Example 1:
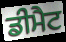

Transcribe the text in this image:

ਡੀਮੈਟ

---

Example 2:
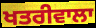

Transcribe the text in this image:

ਖਤਰੀਵਾਲਾ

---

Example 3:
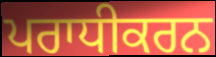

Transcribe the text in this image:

ਪਰਾਧੀਕਰਨ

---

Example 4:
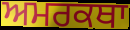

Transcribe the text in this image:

ਅਮਰਕਥਾ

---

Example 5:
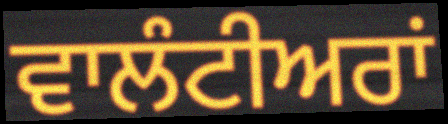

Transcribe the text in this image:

ਵਾਲੰਟੀਅਰਾਂ